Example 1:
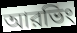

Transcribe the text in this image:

আরভিং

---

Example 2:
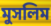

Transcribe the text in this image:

মুসলিম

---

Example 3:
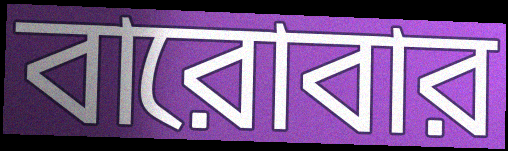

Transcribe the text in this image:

বারোবার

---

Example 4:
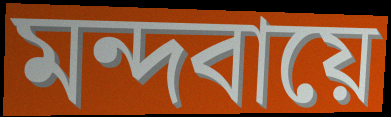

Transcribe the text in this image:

মন্দবায়ে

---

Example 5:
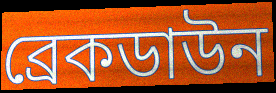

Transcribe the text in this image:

ব্রেকডাউন